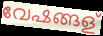
വേഷങ്ങള്